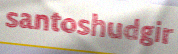
santoshudgir